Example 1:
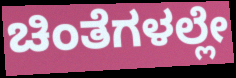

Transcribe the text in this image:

ಚಿಂತೆಗಳಲ್ಲೇ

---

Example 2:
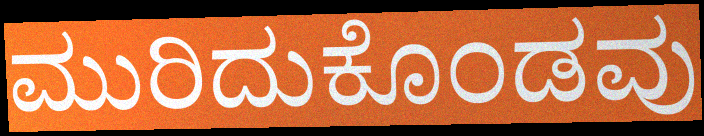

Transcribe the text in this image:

ಮುರಿದುಕೊಂಡವು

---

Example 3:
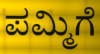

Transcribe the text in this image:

ಪಮ್ಮಿಗೆ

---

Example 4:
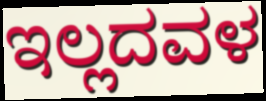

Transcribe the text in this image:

ಇಲ್ಲದವಳ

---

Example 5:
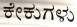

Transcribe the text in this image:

ಕೇಕುಗಳು